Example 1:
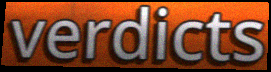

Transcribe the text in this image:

verdicts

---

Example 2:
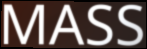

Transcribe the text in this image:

MASS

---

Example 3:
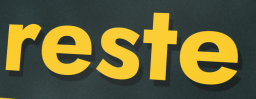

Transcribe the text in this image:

reste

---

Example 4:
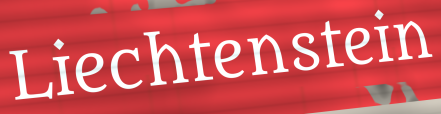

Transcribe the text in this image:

Liechtenstein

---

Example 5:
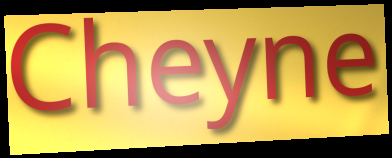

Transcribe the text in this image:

Cheyne